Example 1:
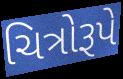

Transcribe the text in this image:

ચિત્રોરૂપે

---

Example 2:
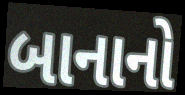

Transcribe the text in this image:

બાનાનો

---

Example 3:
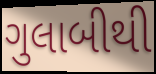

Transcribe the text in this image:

ગુલાબીથી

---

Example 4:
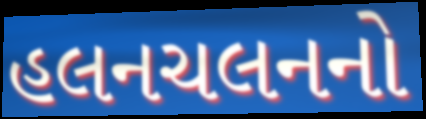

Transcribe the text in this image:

હલનચલનનો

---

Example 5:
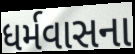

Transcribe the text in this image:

ધર્મવાસના